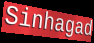
Sinhagad